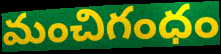
మంచిగంధం